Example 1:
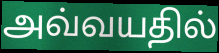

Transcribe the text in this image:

அவ்வயதில்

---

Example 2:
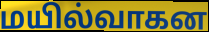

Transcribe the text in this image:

மயில்வாகன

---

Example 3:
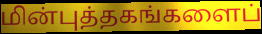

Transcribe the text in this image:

மின்புத்தகங்களைப்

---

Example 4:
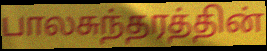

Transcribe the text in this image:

பாலசுந்தரத்தின்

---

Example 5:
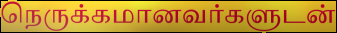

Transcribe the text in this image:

நெருக்கமானவர்களுடன்